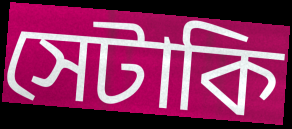
সেটাকি